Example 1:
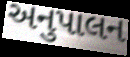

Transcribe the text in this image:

અનુપાલન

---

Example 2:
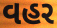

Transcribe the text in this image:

વહર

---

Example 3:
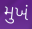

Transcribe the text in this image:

મુખં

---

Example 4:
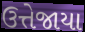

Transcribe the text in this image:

ઉત્તેજાયા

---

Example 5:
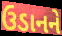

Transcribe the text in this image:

ઉડાનને